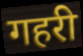
गहरी